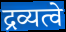
द्रव्यत्वे